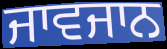
ਜਾਵਜਾਨ